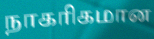
நாகரிகமான